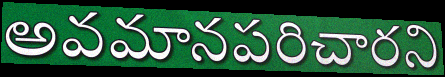
అవమానపరిచారని